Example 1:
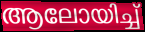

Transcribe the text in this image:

ആലോയിച്ച്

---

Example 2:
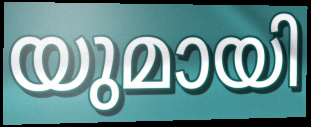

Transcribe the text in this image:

യുമായി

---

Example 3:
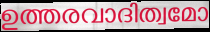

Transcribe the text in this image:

ഉത്തരവാദിത്വമോ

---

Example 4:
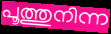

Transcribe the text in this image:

പൂത്തുനിന്ന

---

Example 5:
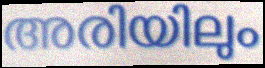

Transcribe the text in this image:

അരിയിലും